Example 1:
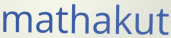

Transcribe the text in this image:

mathakut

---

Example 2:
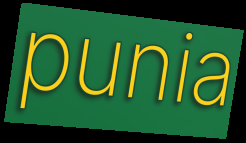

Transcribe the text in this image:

punia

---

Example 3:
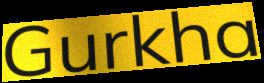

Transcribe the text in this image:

Gurkha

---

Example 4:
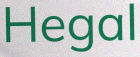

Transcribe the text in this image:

Hegal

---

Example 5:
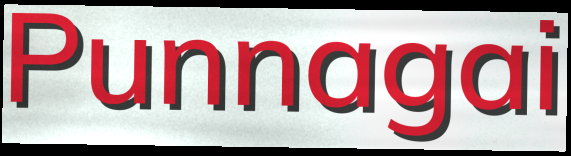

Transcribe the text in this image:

Punnagai